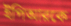
ইপিআরকে